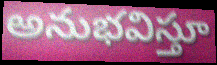
అనుభవిస్తూ